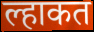
ल्हाकत